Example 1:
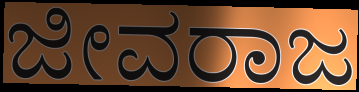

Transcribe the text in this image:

ಜೀವರಾಜ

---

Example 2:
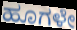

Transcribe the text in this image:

ಹೂಗಳೇ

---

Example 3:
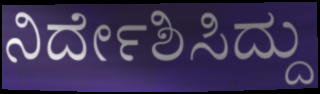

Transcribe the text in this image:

ನಿರ್ದೇಶಿಸಿದ್ದು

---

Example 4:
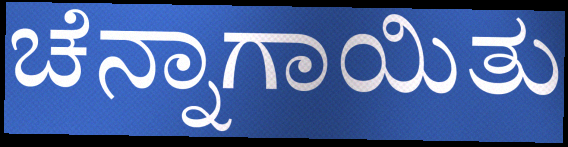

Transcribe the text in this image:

ಚೆನ್ನಾಗಾಯಿತು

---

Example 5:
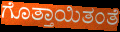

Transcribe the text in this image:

ಗೊತ್ತಾಯಿತಂತೆ